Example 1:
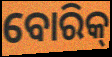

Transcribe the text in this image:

ବୋରିକ୍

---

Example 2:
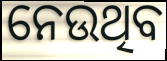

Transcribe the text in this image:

ନେଉଥିବ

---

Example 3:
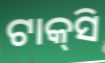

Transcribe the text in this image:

ଟାକ୍‍ସି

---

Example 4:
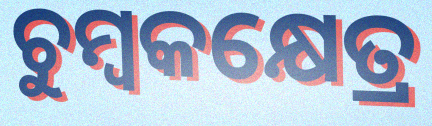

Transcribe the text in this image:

ଚୁମ୍ବକକ୍ଷେତ୍ର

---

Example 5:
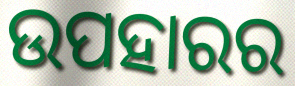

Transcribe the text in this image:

ଉପହାରର